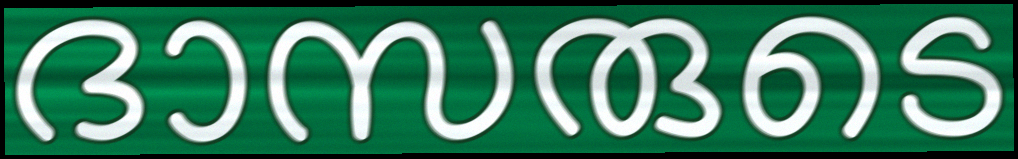
ദാസരുടെ